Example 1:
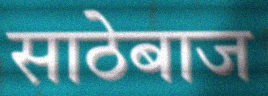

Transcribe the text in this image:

साठेबाज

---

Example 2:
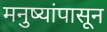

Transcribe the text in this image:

मनुष्यांपासून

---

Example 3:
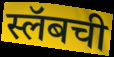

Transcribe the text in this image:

स्लॅबची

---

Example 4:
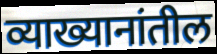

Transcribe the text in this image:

व्याख्यानांतील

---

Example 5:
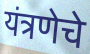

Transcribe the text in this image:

यंत्रणेचे